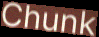
Chunk